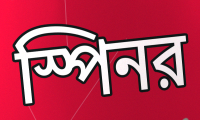
স্পিনর